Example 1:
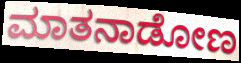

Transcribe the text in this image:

ಮಾತನಾಡೋಣ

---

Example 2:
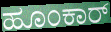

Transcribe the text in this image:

ಹೂಂಕಾರ್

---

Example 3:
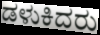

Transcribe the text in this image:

ಡಳುಕಿದರು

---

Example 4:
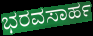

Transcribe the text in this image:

ಭರವಸಾರ್ಹ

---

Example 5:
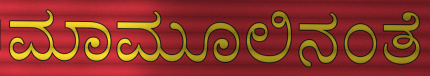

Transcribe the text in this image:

ಮಾಮೂಲಿನಂತೆ